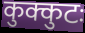
कुक्कुटः